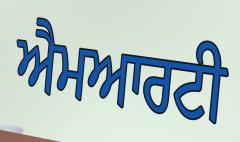
ਐਮਆਰਟੀ